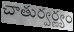
చాతుర్వర్ణ్యం